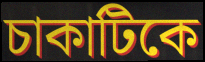
চাকাটিকে